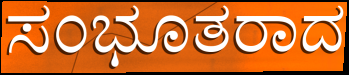
ಸಂಭೂತರಾದ